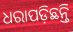
ଧରାପଡ଼ିଛନ୍ତି